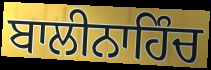
ਬਾਲੀਨਾਹਿੰਚ